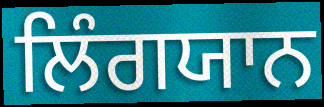
ਲਿੰਗਯਾਨ